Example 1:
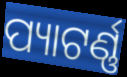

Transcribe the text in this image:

ପ୍ୟାଟର୍ଣ୍ଣ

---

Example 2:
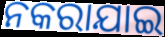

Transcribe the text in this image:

ନକରାଯାଇ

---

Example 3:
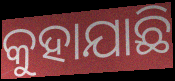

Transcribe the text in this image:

କୁହାଯାଛି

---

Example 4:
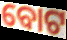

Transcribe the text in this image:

ବୋଟ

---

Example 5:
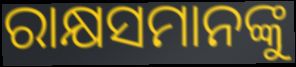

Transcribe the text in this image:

ରାକ୍ଷସମାନଙ୍କୁ